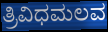
ತ್ರಿವಿಧಮಲವ